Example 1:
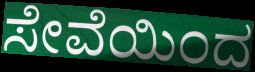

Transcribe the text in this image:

ಸೇವೆಯಿಂದ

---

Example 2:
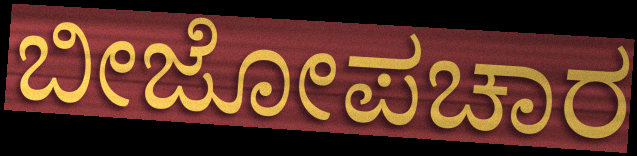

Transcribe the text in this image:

ಬೀಜೋಪಚಾರ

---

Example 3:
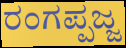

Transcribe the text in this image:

ರಂಗಪ್ಪಜ್ಜ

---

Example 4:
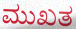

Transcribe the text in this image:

ಮುಖತ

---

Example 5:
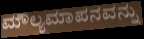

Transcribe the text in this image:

ಮೌಲ್ಯಮಾಪನವನ್ನು